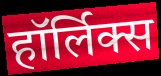
हॉर्लिक्‍स